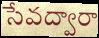
సేవద్వారా